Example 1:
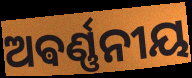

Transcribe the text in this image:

ଅଵର୍ଣ୍ଣନୀୟ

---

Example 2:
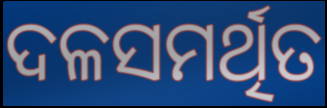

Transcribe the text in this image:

ଦଳସମର୍ଥିତ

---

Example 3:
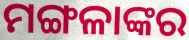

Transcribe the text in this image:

ମଙ୍ଗଳାଙ୍କର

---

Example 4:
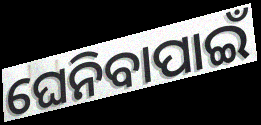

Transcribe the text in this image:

ଘେନିବାପାଇଁ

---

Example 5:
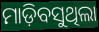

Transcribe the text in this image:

ମାଡ଼ିବସୁଥିଲା